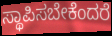
ಸ್ಥಾಪಿಸಬೇಕೆಂದರೆ